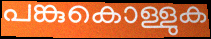
പങ്കുകൊള്ളുക